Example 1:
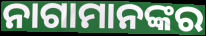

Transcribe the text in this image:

ନାଗାମାନଙ୍କର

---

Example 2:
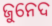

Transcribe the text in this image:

ଜୁନେଦ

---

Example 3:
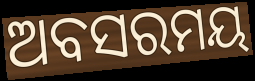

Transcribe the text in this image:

ଅବସରମୟ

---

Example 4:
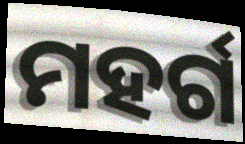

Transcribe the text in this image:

ମହର୍ଗ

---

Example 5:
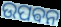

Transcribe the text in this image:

ଉପଵନ